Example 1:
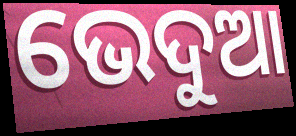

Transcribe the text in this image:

ଭେଦୁଆ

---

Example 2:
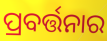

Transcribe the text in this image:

ପ୍ରବର୍ତ୍ତନାର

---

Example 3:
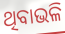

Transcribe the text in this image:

ଥିବାଭଳି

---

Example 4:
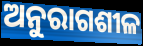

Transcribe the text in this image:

ଅନୁରାଗଶୀଳ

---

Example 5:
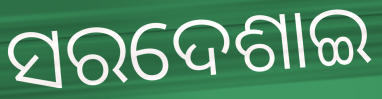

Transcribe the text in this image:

ସରଦେଶାଇ